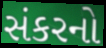
સંકરનો